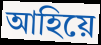
আহিয়ে